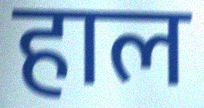
हाल